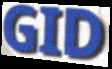
GID